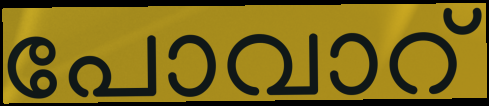
പോവാറ്